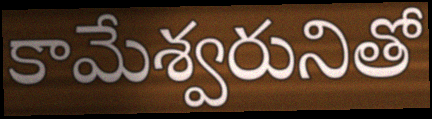
కామేశ్వరునితో